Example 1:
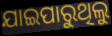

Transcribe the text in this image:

ଯାଇପାରୁଥିଲୁ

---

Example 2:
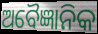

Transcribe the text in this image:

ଅବୈଜ୍ଞାନିକ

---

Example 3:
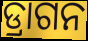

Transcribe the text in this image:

ଡ୍ରାଗନ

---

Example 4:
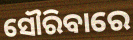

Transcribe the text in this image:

ସୌରିବାରେ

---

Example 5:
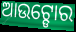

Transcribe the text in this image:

ଆଉଟ୍ଡୋର